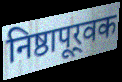
निष्ठापूर्वक